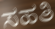
ಸಹತಿ